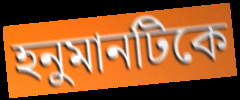
হনুমানটিকে